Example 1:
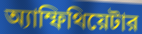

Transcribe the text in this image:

অ্যাম্ফিথিয়েটার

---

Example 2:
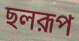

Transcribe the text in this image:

ছলরূপ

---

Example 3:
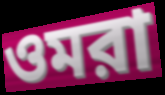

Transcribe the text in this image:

ওমরা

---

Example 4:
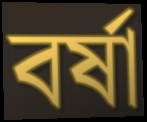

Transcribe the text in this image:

বর্ষা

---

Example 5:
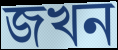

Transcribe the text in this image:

জখন